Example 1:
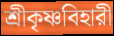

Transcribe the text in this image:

শ্রীকৃষ্ণবিহারী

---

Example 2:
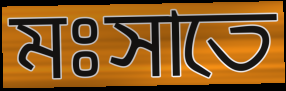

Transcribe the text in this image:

মঃসাতে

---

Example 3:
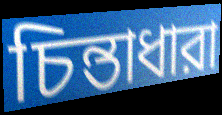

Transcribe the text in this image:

চিন্তাধারা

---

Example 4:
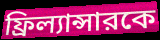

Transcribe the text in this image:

ফ্রিল্যান্সারকে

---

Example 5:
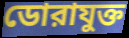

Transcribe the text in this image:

ডোরাযুক্ত